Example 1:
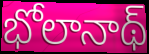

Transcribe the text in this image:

భోలానాథ్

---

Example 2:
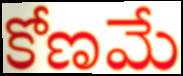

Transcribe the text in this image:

కోణమే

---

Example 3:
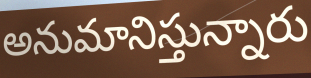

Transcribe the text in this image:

అనుమానిస్తున్నారు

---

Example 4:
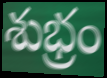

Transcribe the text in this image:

శుభ్రం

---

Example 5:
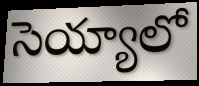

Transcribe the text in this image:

సెయ్యాలో